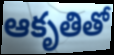
ఆకృతితో